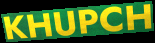
KHUPCH